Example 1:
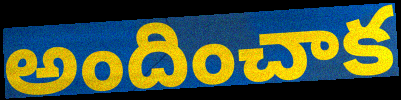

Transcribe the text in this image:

అందించాక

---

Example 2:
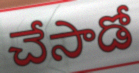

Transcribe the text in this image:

చేసాడో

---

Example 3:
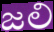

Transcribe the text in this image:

జలి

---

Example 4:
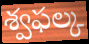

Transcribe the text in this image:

శ్వఫల్క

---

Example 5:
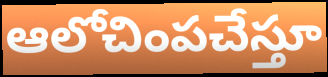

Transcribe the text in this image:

ఆలోచింపచేస్తూ